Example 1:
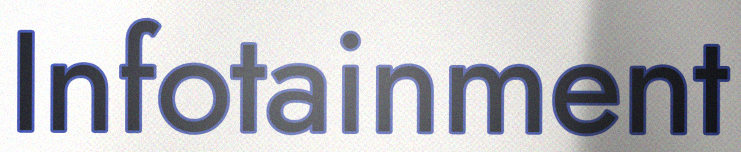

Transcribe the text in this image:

Infotainment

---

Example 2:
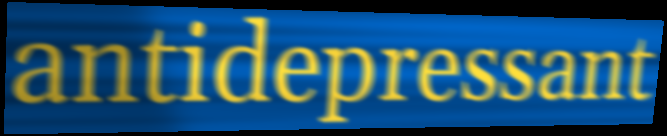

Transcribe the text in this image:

antidepressant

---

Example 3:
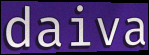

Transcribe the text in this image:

daiva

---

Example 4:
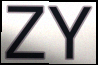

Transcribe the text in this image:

ZY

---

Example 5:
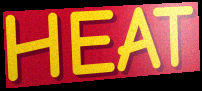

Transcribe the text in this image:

HEAT